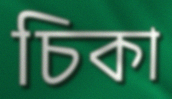
চিকা